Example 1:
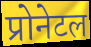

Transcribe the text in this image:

प्रोनेटल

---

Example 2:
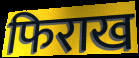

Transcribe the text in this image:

फिराख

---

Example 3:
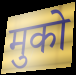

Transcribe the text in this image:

मुको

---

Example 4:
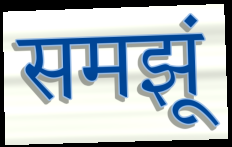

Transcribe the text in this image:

समझूं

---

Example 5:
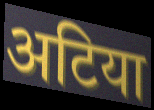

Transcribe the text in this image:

अटिया